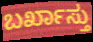
ಬರ್ಖಾಸ್ತು